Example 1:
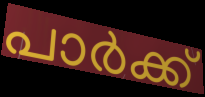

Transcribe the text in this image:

പാർക്ക്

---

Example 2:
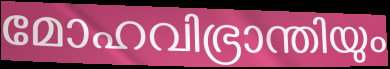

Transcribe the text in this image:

മോഹവിഭ്രാന്തിയും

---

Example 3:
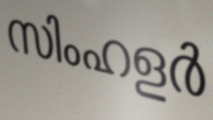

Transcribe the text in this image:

സിംഹളർ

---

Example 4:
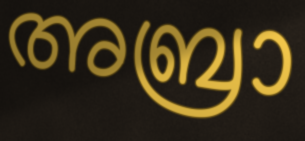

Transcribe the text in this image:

അബ്രാ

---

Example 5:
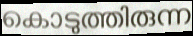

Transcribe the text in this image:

കൊടുത്തിരുന്ന